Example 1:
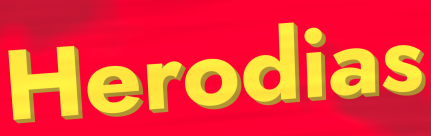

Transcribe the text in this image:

Herodias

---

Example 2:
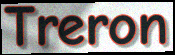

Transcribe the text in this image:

Treron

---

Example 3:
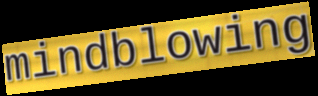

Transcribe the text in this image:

mindblowing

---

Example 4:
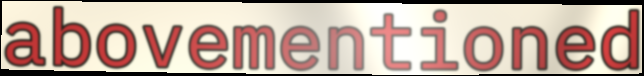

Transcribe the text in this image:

abovementioned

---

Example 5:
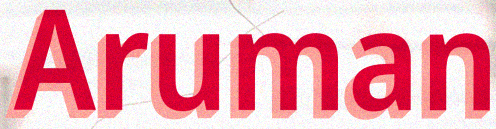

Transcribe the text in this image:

Aruman